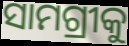
ସାମଗ୍ରୀକୁ